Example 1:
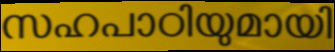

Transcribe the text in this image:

സഹപാഠിയുമായി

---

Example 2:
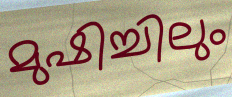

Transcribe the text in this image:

മുഷിച്ചിലും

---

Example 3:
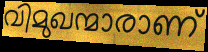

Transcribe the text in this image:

വിമുഖന്മാരാണ്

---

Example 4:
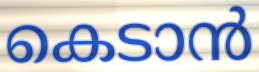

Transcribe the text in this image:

കെടാൻ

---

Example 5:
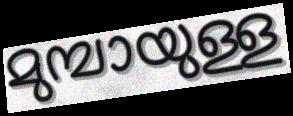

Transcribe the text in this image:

മുമ്പായുള്ള